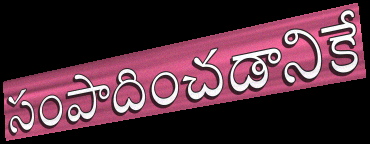
సంపాదించడానికే